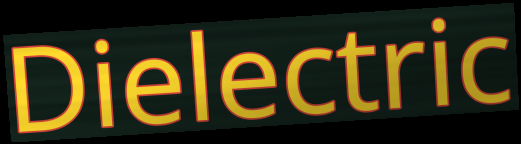
Dielectric